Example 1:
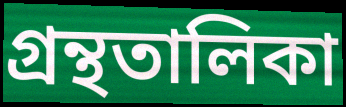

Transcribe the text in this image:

গ্ৰন্থতালিকা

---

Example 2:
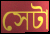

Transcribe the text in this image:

সেটা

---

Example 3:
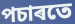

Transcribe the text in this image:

পচাৰতে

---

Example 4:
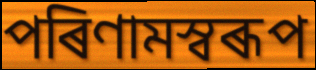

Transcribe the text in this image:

পৰিণামস্বৰূপ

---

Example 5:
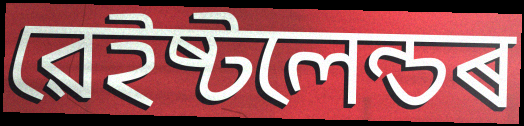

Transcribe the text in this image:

ৱেইষ্টলেন্ডৰ